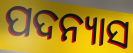
ପଦନ୍ୟାସ